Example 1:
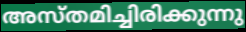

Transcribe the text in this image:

അസ്തമിച്ചിരിക്കുന്നു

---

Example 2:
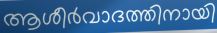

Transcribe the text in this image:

ആശീർവാദത്തിനായി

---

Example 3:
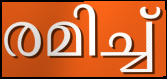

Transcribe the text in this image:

രമിച്ച്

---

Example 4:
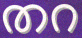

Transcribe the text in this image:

തറ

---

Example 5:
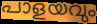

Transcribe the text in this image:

പാളയവും